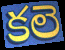
కలె